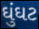
ઘુંઘટ